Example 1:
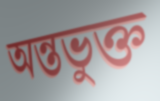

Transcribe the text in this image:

অন্তভুক্ত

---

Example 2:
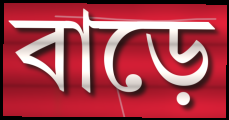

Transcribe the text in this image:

বাড়ে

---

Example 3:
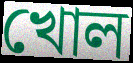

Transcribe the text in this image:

খোল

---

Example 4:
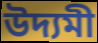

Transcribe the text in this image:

উদ্যমী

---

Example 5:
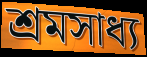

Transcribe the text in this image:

শ্ৰমসাধ্য